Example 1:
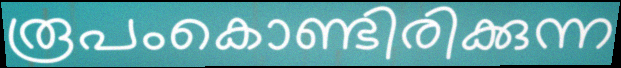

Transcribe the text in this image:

രൂപംകൊണ്ടിരിക്കുന്ന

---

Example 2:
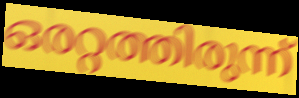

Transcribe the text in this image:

ഒരറ്റത്തിരുന്ന്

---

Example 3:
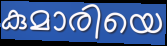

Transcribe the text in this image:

കുമാരിയെ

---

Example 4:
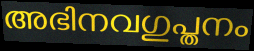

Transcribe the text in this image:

അഭിനവഗുപ്തനം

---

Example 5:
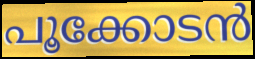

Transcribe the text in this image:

പൂക്കോടൻ